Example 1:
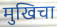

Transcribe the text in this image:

मुखिचा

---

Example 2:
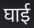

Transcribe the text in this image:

घाई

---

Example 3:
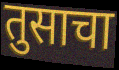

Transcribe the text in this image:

तुसाचा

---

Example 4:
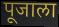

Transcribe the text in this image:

पूजाला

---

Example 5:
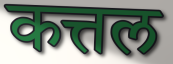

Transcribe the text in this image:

कत्तल